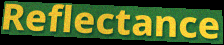
Reflectance